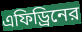
এফিড্রিনের